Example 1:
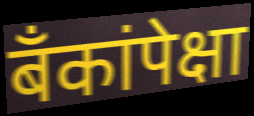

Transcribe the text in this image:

बँकांपेक्षा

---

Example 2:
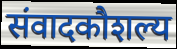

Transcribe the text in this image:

संवादकौशल्य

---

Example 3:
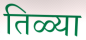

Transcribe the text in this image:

तिळ्या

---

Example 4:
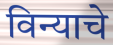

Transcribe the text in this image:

विन्याचे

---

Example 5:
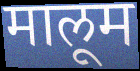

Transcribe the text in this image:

मालूम